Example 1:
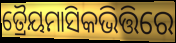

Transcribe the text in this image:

ତ୍ରୈୟମାସିକଭିତ୍ତିରେ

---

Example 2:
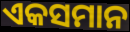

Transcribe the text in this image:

ଏକସମାନ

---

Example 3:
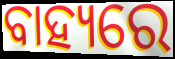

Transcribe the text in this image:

ବାହ୍ୟରେ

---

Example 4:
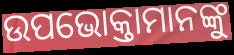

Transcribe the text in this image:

ଉପଭୋକ୍ତାମାନଙ୍କୁ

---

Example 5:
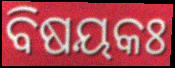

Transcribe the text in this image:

ବିଷୟକଃ